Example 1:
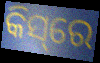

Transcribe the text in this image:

କିସ୍‌ରେ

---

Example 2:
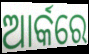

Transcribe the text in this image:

ଆର୍କରେ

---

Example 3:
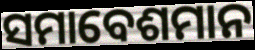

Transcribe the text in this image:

ସମାବେଶମାନ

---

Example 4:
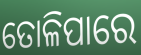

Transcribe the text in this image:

ତୋଳିପାରେ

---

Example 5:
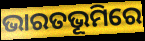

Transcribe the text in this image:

ଭାରତଭୂମିରେ